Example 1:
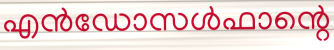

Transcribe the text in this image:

എൻഡോസൾഫാന്റെ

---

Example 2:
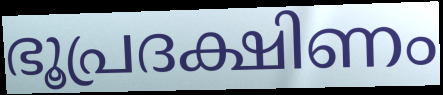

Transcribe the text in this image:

ഭൂപ്രദക്ഷിണം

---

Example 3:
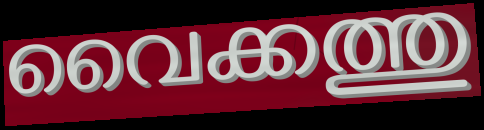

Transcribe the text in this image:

വൈക്കത്തു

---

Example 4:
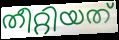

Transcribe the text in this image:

തീറ്റിയത്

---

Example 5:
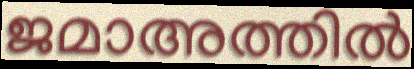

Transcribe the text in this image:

ജമാഅത്തിൽ